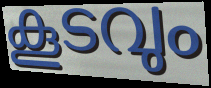
കൂടവും